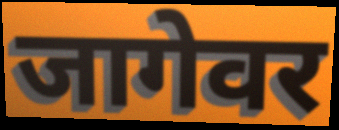
जागेवर